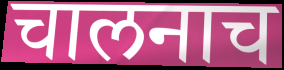
चालनाच